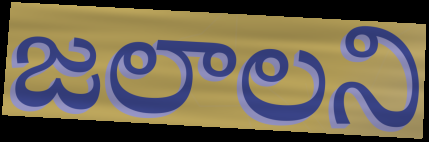
జలాలని